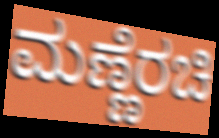
ಮಣ್ಣೆರಚಿ